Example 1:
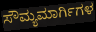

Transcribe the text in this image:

ಸೌಮ್ಯಮಾರ್ಗಿಗಳ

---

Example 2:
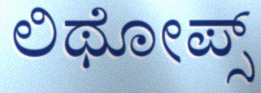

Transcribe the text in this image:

ಲಿಥೋಪ್ಸ್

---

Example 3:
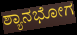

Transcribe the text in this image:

ಶ್ಯಾನಭೋಗ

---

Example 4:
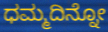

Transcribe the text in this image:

ಧಮ್ಮದಿನ್ನೋ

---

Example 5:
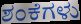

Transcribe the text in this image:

ಶಂಕೆಗಳು